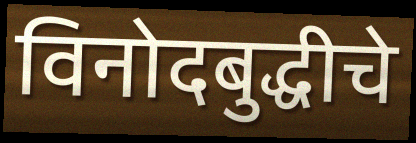
विनोदबुद्धीचे